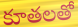
కూతలతో